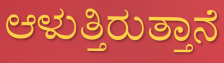
ಆಳುತ್ತಿರುತ್ತಾನೆ